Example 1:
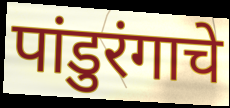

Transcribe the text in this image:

पांडुरंगाचे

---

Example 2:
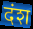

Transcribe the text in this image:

दंश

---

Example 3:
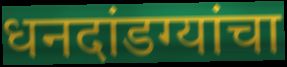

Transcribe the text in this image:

धनदांडग्यांचा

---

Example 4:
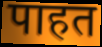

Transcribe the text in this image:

पाहत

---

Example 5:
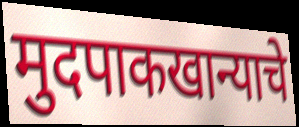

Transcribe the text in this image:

मुदपाकखान्याचे